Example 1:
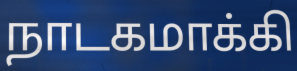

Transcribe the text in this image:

நாடகமாக்கி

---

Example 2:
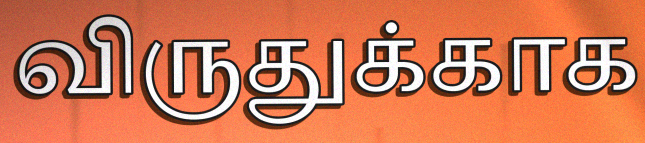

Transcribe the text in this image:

விருதுக்காக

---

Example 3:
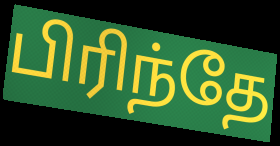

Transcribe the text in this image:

பிரிந்தே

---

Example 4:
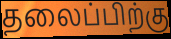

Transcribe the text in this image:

தலைப்பிற்கு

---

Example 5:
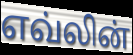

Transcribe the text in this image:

எவ்லின்